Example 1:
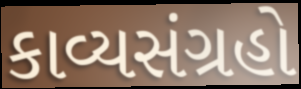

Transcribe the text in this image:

કાવ્યસંગ્રહો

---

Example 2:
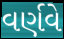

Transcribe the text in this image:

વર્ણવે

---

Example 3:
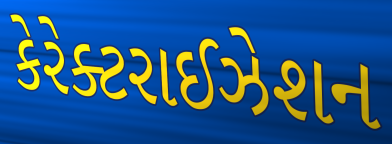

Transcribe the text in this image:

કેરેક્ટરાઈઝેશન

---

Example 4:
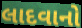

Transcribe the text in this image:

લાદવાનો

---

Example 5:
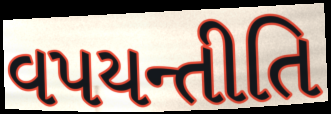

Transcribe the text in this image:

વપયન્તીતિ